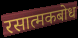
रसात्मकबोध